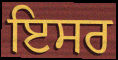
ਇਸਰ